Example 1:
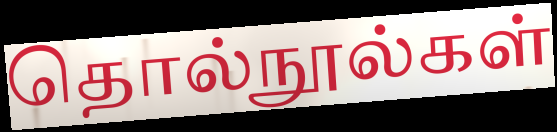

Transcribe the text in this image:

தொல்நூல்கள்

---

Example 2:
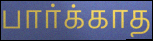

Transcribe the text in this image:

பார்க்காத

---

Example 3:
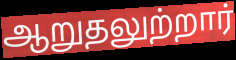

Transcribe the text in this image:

ஆறுதலுற்றார்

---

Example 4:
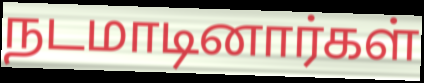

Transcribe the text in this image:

நடமாடினார்கள்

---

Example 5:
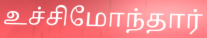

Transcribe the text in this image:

உச்சிமோந்தார்